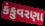
કંકુવરણા